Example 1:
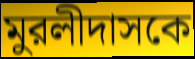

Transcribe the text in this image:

মুরলীদাসকে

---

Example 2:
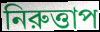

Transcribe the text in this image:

নিরুত্তাপ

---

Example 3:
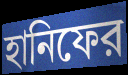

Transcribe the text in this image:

হানিফের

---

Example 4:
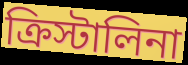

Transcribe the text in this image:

ক্রিস্টালিনা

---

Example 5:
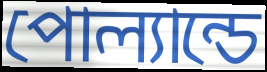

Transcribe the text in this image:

পোল্যান্ডে